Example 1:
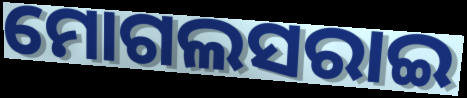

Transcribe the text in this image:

ମୋଗଲସରାଇ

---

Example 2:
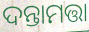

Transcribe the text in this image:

ଦନ୍ତାମତ୍ତା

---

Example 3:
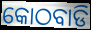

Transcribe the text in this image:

କୋଠବାଡି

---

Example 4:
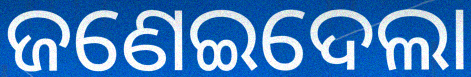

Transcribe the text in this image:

ଜଣେଇଦେଲା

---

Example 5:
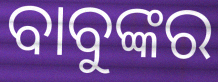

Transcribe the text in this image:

ବାବୁଙ୍କର